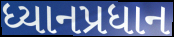
ધ્યાનપ્રધાન